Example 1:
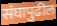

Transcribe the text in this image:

संघापुढील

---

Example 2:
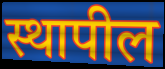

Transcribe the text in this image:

स्थापील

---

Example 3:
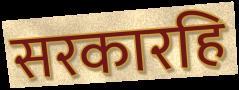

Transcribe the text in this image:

सरकारहि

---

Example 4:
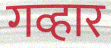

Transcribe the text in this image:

गव्हार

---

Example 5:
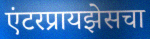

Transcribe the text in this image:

एंटरप्रायझेसचा